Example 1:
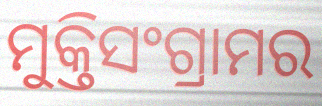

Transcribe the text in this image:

ମୁକ୍ତିସଂଗ୍ରାମର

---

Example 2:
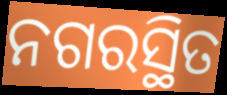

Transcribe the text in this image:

ନଗରସ୍ଥିତ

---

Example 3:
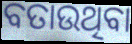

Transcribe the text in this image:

ବତାଉଥିବା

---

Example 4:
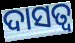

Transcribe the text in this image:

ଦାସତ୍ବ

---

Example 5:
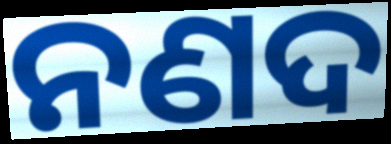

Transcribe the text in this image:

ନଣଦ